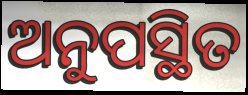
ଅନୁପସ୍ଥିତ